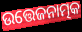
ଉତ୍ତେଜନାତ୍ମକ